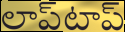
లాప్‌టాప్